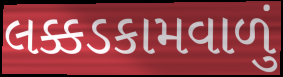
લક્કડકામવાળું